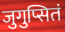
जुगुप्सितं